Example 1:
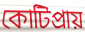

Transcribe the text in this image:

কোটিপ্ৰায়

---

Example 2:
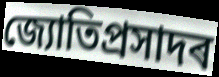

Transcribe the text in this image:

জ্যোতিপ্ৰসাদৰ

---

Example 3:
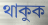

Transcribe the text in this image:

থাকুক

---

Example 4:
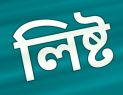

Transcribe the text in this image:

লিষ্ট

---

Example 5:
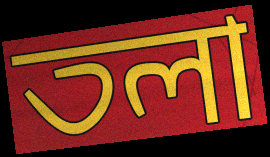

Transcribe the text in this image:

তলা